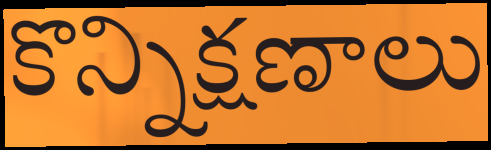
కొన్నిక్షణాలు